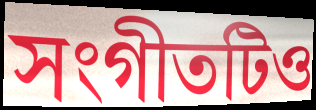
সংগীতটিও